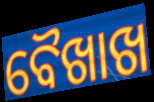
ବୈଖାଖ